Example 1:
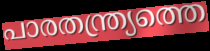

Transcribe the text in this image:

പാരതന്ത്ര്യത്തെ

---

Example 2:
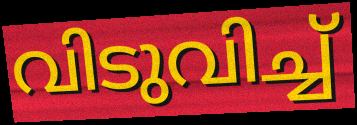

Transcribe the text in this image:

വിടുവിച്ച്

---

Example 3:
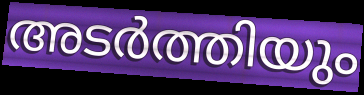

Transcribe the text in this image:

അടർത്തിയും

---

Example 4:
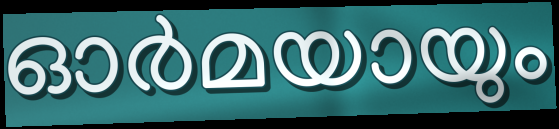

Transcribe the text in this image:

ഓർമയായും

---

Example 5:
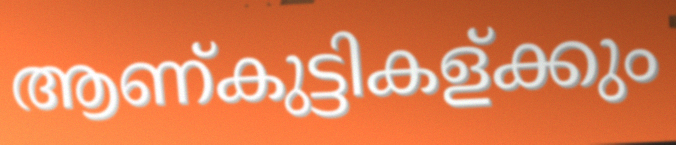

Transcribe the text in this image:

ആണ്കുട്ടികള്ക്കും